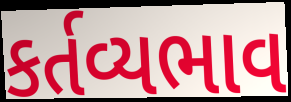
કર્તવ્યભાવ